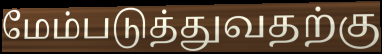
மேம்படுத்துவதற்கு